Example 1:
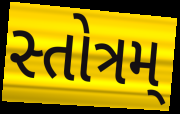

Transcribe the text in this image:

સ્તોત્રમ્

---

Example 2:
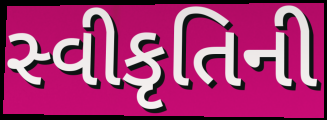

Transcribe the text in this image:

સ્વીકૃતિની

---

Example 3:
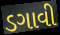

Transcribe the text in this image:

ડગાવી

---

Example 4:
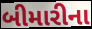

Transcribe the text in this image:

બીમારીના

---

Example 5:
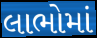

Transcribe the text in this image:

લાભોમાં